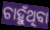
ଚାହୁଁଥିବା